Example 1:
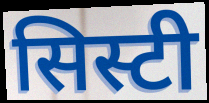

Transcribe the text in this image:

सिस्टी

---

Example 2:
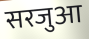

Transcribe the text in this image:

सरजुआ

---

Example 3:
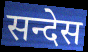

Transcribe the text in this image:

सन्देस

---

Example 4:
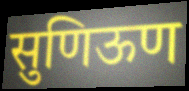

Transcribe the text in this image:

सुणिऊण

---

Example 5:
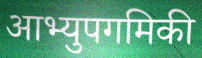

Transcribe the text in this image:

आभ्युपगमिकी